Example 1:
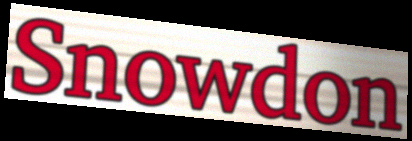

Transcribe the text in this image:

Snowdon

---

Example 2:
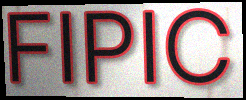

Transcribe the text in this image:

FIPIC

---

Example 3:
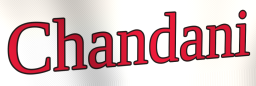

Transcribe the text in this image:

Chandani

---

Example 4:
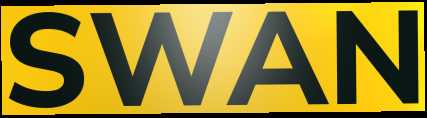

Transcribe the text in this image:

SWAN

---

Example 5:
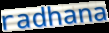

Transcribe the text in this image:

radhana